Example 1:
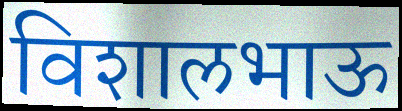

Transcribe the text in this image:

विशालभाऊ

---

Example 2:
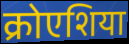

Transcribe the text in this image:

क्रोएशिया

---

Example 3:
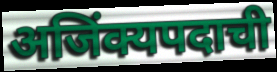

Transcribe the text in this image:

अजिंक्यपदाची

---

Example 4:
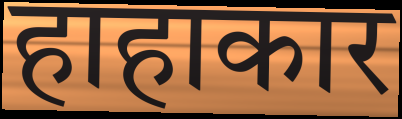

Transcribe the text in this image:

हाहाकार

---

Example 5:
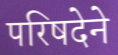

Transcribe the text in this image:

परिषदेने